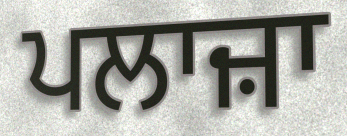
ਪਲਾਜ਼ਾ